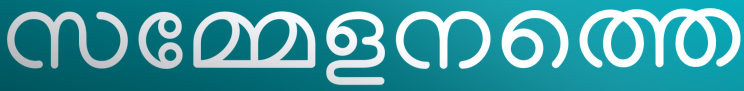
സമ്മേളനത്തെ